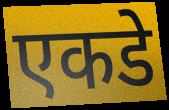
एकडे